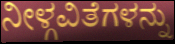
ನೀಳ್ಗವಿತೆಗಳನ್ನು